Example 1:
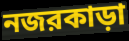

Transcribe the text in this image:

নজরকাড়া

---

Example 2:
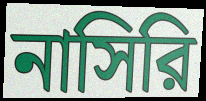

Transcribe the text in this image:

নাসিরি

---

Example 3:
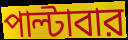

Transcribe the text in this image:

পাল্টাবার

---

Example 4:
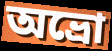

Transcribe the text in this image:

অভ্রো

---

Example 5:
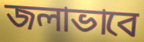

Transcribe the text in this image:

জলাভাবে